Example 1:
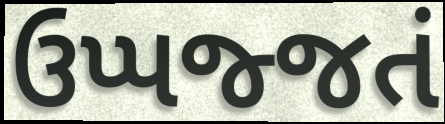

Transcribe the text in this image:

ઉપ્પજ્જતં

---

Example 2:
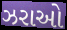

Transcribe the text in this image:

ઝરાઓ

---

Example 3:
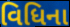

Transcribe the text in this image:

વિધિના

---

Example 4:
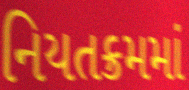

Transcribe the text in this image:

નિયતક્રમમાં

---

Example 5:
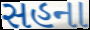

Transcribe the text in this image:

સહના